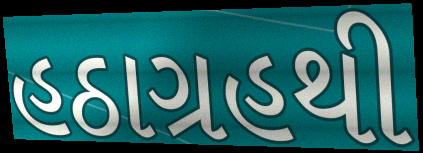
હઠાગ્રહથી